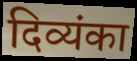
दिव्यंका